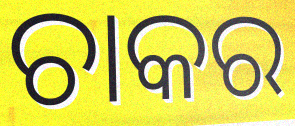
ଚାକର